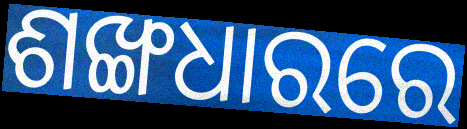
ଶଙ୍ଖଧାରରେ